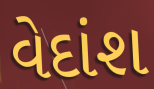
વેદાંશ